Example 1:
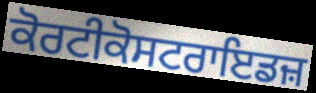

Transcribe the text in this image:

ਕੋਰਟੀਕੋਸਟਰਾਇਡਜ਼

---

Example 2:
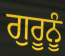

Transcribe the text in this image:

ਗੁਰੂਨੂੰ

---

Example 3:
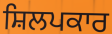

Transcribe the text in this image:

ਸ਼ਿਲਪਕਾਰ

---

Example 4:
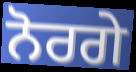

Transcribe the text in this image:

ਨੋਰਗੇ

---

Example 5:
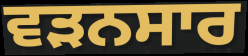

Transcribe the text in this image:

ਵੜਨਸਾਰ